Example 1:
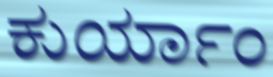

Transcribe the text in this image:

ಕುರ್ಯಾಂ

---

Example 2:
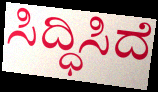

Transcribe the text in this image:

ಸಿದ್ಧಿಸಿದೆ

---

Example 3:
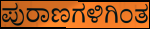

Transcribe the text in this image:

ಪುರಾಣಗಳಿಗಿಂತ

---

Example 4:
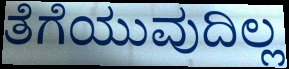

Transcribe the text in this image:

ತೆಗೆಯುವುದಿಲ್ಲ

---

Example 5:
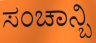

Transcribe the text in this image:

ಸಂಚಾನ್ಬಿ